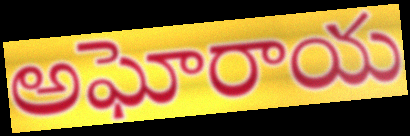
అఘోరాయ